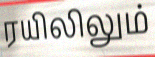
ரயிலிலும்